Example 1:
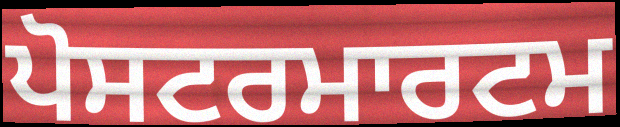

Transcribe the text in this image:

ਪੋਸਟਰਮਾਰਟਮ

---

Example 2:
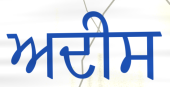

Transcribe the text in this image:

ਅਦੀਸ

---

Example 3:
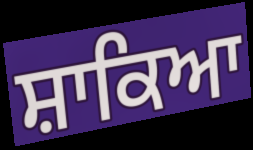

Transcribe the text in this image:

ਸ਼ਾਕਿਆ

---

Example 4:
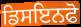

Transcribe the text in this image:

ਡਿਸਇਨਫੋ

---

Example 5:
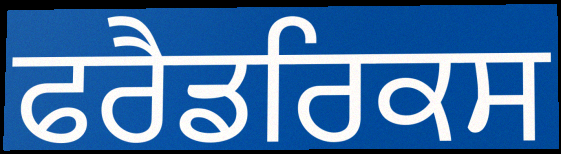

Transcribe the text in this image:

ਫਰੈਡਰਿਕਸ